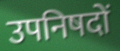
उपनिषदों